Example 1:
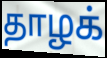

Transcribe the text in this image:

தாழக்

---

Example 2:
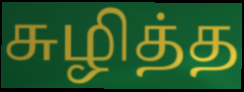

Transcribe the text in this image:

சுழித்த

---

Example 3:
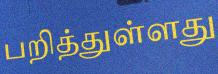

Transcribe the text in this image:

பறித்துள்ளது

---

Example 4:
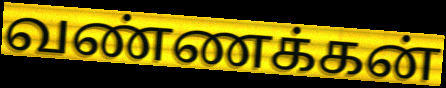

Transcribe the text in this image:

வண்ணக்கன்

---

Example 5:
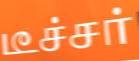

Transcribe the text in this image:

டீச்சர்